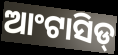
ଆଂଟାସିଡ୍